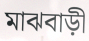
মাঝবাড়ী